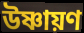
উষ্ণায়ণ